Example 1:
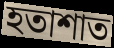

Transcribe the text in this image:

হতাশাত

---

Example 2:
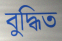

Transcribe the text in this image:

বুদ্ধিত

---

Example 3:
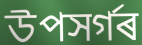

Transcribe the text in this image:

উপসৰ্গৰ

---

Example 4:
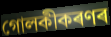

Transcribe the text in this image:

গোলকীকৰণৰ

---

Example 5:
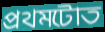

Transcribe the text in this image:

প্ৰথমটোত